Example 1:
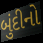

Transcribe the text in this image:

બુંદીનો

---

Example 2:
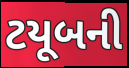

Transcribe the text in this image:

ટયૂબની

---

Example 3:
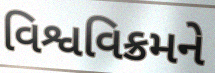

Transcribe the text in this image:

વિશ્વવિક્રમને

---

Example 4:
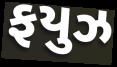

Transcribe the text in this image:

ફયુઝ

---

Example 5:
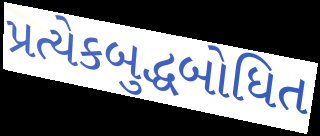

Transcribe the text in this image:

પ્રત્યેકબુદ્ધબોધિત